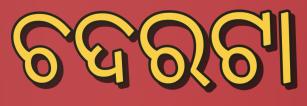
ଚଦରଟା